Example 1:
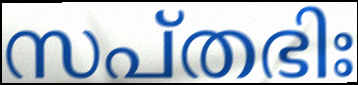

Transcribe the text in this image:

സപ്തഭിഃ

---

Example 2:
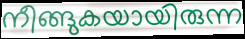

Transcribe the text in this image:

നീങ്ങുകയായിരുന്ന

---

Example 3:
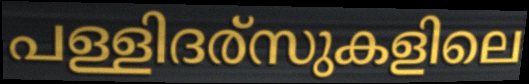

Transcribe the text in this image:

പള്ളിദര്സുകളിലെ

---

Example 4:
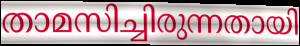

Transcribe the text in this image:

താമസിച്ചിരുന്നതായി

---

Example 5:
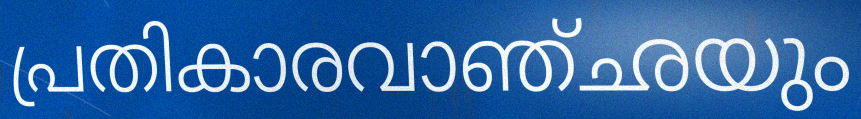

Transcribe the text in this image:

പ്രതികാരവാഞ്ഛയും